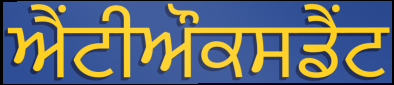
ਐਂਟੀਔਕਸਡੈਂਟ